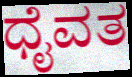
ಧೈವತ